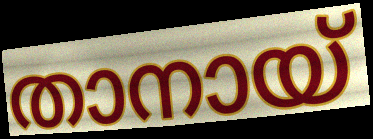
താനായ്